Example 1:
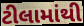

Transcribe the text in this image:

ટીલામાંથી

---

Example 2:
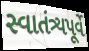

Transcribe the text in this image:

સ્વાતંત્ર્યપૂર્વે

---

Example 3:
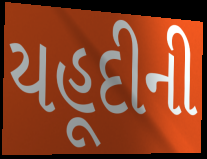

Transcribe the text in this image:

યહૂદીની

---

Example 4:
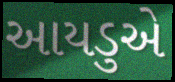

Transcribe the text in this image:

આયડુએ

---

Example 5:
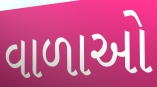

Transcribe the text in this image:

વાળાઓ